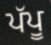
ਪੱਪੂ